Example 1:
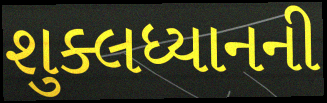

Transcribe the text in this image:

શુક્લધ્યાનની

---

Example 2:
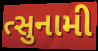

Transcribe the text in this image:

ત્સુનામી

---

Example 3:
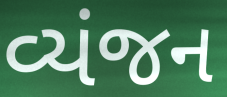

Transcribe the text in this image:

વ્યંજન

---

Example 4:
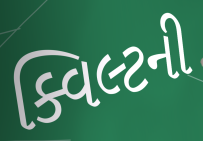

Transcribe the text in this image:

ક્વિલ્ટની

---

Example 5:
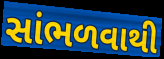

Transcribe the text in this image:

સાંભળવાથી